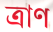
ত্রাণ